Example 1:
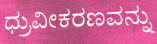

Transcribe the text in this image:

ಧ್ರುವೀಕರಣವನ್ನು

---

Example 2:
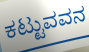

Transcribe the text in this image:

ಕಟ್ಟುವವನ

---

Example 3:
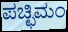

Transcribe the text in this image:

ಪಚ್ಛಿಮಂ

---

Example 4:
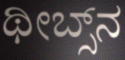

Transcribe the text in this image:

ಥೀಬ್ಸ್‌ನ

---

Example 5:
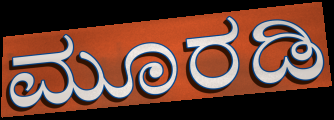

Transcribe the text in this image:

ಮೂರಡಿ